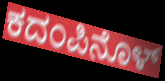
ಕದಂಪಿನೊಳ್